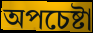
অপচেষ্টা